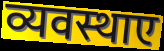
व्यवस्थाए